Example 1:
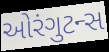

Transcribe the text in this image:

ઓરંગુટન્સ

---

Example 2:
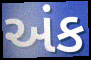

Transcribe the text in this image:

અંક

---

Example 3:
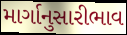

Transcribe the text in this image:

માર્ગાનુસારીભાવ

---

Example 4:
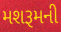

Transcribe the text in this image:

મશરૂમની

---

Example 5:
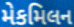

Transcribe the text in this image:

મેકમિલન